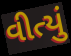
વીત્યું